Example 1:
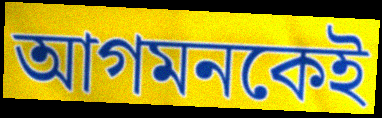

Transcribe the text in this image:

আগমনকেই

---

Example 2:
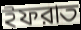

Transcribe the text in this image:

ইফরাত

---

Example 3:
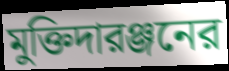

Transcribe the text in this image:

মুক্তিদারঞ্জনের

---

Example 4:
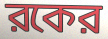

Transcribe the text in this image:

রকের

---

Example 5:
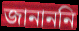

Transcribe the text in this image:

জানাননি